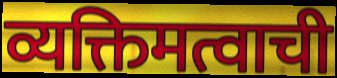
व्यक्तिमत्वाची